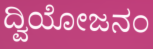
ದ್ವಿಯೋಜನಂ